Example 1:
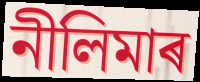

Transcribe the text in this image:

নীলিমাৰ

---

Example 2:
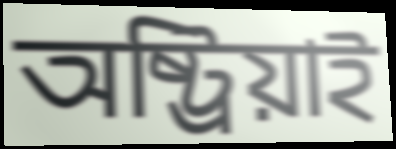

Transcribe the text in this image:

অষ্ট্ৰিয়াই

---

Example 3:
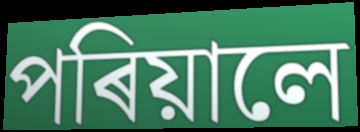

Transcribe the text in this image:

পৰিয়ালে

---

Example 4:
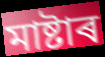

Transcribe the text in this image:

মাষ্টাৰ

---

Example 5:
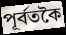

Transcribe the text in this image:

পূৰ্বতকৈ